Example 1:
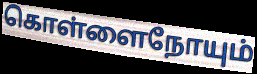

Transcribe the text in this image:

கொள்ளைநோயும்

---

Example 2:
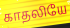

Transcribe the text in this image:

காதலியே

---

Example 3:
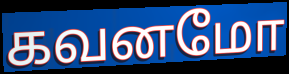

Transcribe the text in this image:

கவனமோ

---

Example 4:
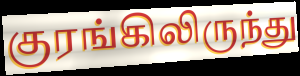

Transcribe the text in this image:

குரங்கிலிருந்து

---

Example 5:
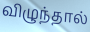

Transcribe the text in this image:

விழுந்தால்